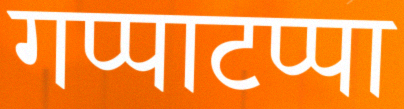
गप्पाटप्पा